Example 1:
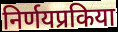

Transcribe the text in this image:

निर्णयप्रकिया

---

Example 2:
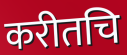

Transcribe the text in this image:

करीतचि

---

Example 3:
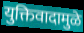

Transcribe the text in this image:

युक्तिवादामुळे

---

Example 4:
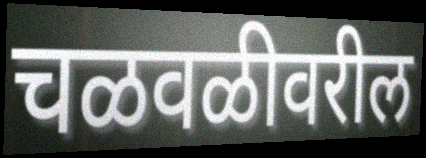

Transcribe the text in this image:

चळवळीवरील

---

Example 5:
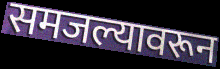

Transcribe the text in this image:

समजल्यावरून